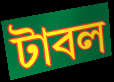
টাবল